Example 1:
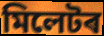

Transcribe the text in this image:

মিলেটৰ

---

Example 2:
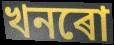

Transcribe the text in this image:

খনৰো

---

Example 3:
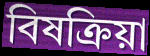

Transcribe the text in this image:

বিষক্ৰিয়া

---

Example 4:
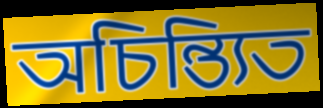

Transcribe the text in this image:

অচিন্ত্যিত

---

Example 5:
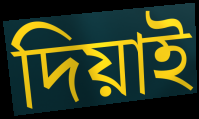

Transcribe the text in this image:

দিয়াই